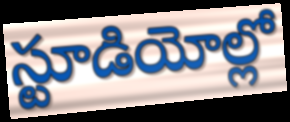
స్టూడియోల్లో